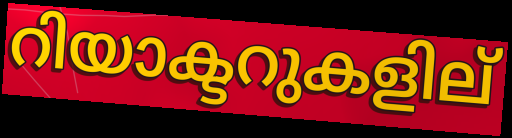
റിയാക്ടറുകളില്